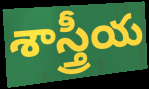
శాస్త్రీయ